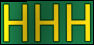
HHH